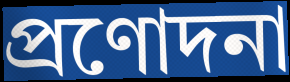
প্রণোদনা